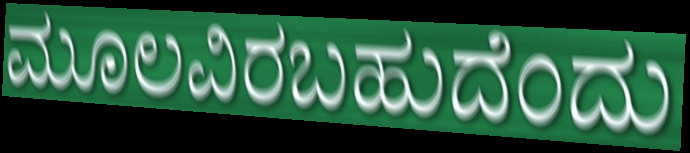
ಮೂಲವಿರಬಹುದೆಂದು